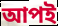
আপই